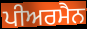
ਪੀਅਰਮੈਨ